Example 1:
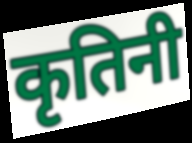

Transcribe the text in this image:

कृतिनी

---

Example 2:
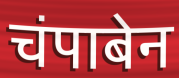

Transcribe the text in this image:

चंपाबेन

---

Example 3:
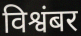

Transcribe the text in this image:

विश्वंबर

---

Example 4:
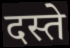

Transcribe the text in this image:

दस्ते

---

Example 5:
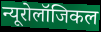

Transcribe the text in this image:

न्यूरोलॉजिकल